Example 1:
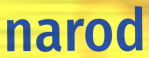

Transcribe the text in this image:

narod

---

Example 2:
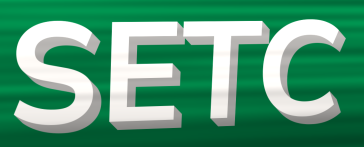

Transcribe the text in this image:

SETC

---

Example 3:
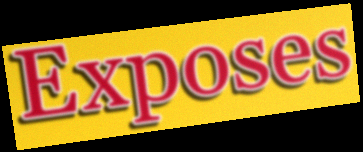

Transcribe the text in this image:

Exposes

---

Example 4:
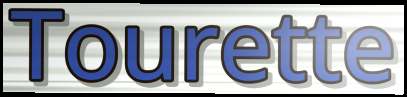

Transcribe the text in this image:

Tourette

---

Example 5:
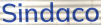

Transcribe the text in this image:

Sindaco